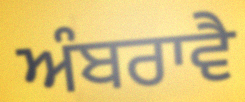
ਅੰਬਰਾਵੈ